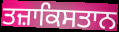
ਤਜ਼ਾਕਿਸਤਾਨ